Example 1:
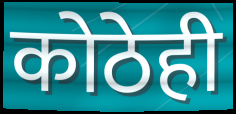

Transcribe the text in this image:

कोठेही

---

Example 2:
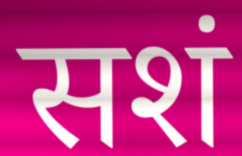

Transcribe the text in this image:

सशं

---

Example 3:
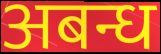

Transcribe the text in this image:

अबन्ध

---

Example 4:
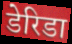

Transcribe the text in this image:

डेरिडा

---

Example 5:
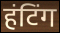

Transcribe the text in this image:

हंटिंग